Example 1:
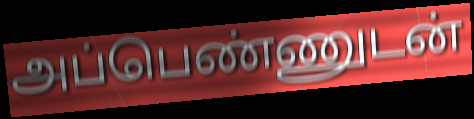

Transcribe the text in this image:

அப்பெண்ணுடன்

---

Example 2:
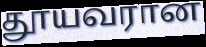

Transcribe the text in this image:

தூயவரான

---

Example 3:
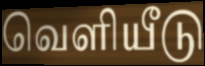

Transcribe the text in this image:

வெளியீடு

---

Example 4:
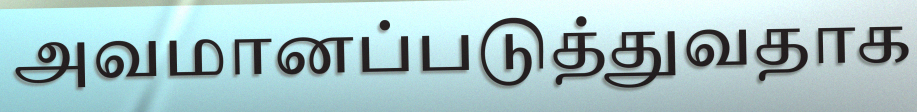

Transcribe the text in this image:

அவமானப்படுத்துவதாக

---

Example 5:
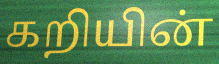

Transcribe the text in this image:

கறியின்